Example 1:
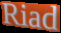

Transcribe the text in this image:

Riad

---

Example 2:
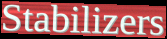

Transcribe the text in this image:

Stabilizers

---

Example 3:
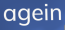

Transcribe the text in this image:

agein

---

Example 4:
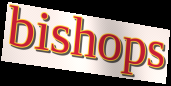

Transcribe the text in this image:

bishops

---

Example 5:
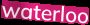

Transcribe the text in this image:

waterloo